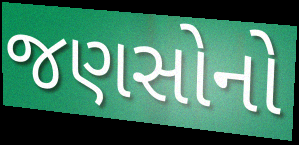
જણસોનો